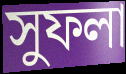
সুফলা